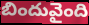
బిందువైంది